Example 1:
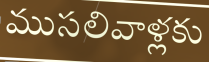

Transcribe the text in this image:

ముసలివాళ్లకు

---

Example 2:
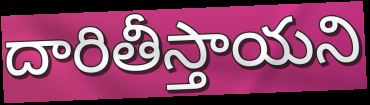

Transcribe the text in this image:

దారితీస్తాయని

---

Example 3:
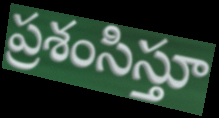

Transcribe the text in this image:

ప్రశంసిస్తూ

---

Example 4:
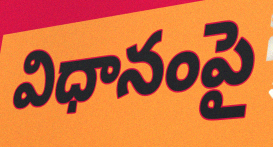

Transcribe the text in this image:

విధానంపై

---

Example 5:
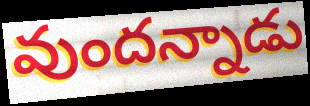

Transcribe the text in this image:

వుందన్నాడు